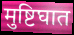
मुष्टिघात